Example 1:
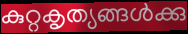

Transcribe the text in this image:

കുറ്റകൃത്യങ്ങൾക്കു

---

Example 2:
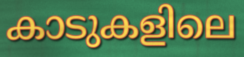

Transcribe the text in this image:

കാടുകളിലെ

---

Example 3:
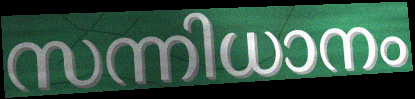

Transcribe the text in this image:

സന്നിധാനം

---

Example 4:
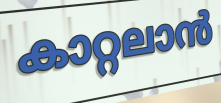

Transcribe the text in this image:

കാറ്റലാൻ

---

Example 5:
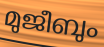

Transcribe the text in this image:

മുജീബും